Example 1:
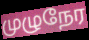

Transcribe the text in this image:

முழுநேர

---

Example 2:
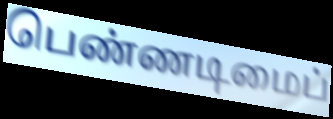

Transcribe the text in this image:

பெண்ணடிமைப்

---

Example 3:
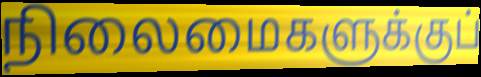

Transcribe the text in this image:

நிலைமைகளுக்குப்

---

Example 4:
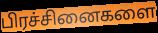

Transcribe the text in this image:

பிரச்சினைகளை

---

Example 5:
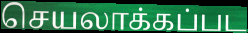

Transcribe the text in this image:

செயலாக்கப்பட